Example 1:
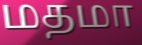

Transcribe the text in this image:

மதமா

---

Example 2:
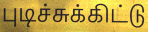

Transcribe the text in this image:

புடிச்சுக்கிட்டு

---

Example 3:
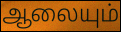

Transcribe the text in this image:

ஆலையும்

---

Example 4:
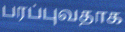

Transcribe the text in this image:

பரப்புவதாக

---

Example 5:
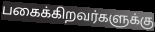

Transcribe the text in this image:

பகைக்கிறவர்களுக்கு